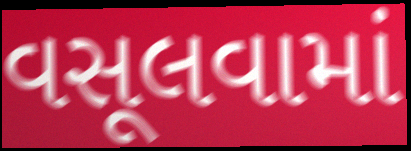
વસૂલવામાં